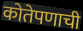
कोतेपणाची